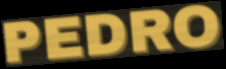
PEDRO